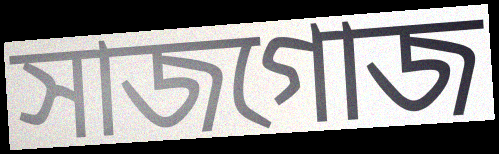
সাজগোজ